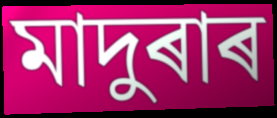
মাদুৰাৰ